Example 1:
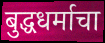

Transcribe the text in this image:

बुद्धधर्माचा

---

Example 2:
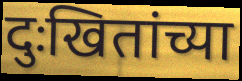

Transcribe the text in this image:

दुःखितांच्या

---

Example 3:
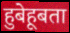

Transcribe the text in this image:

हुबेहूबता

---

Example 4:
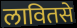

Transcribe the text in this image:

लावितसे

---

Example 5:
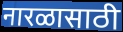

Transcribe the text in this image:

नारळासाठी